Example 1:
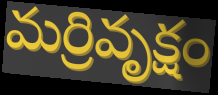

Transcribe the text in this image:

మర్రివృక్షం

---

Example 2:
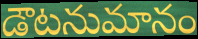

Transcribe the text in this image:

డౌటనుమానం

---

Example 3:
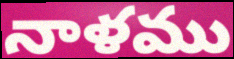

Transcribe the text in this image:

నాళము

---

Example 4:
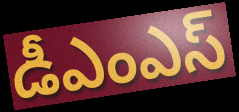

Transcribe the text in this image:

డీఎంఎస్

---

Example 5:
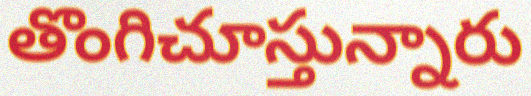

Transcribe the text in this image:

తొంగిచూస్తున్నారు